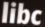
libc